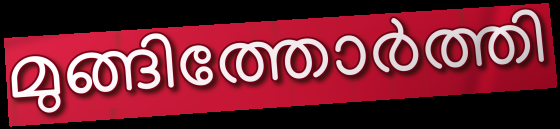
മുങ്ങിത്തോർത്തി